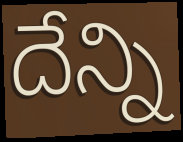
దేన్ని